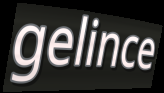
gelince